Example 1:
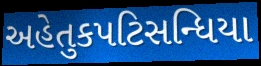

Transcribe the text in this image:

અહેતુકપટિસન્ધિયા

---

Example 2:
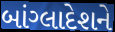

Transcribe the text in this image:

બાંગ્લાદેશને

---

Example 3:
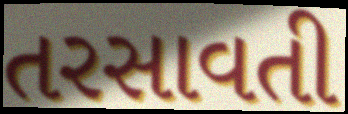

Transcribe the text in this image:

તરસાવતી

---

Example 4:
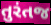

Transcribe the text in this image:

તુરંતજ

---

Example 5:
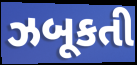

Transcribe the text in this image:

ઝબૂકતી